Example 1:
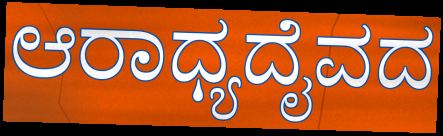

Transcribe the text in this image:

ಆರಾಧ್ಯದೈವದ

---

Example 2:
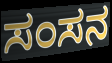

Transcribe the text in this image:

ಸಂಸನ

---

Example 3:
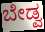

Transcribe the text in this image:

ಬೇಡ್ವ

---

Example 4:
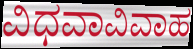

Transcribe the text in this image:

ವಿಧವಾವಿವಾಹ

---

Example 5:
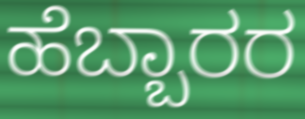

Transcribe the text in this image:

ಹೆಬ್ಬಾರರ